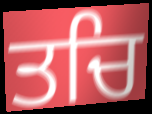
ਤਚਿ